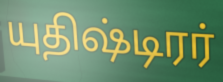
யுதிஷ்டிரர்